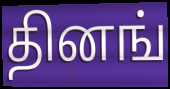
தினங்